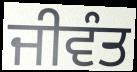
ਜੀਵੰਤ